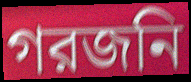
গরজনি